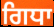
ਗਿਧਾ